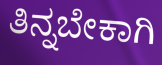
ತಿನ್ನಬೇಕಾಗಿ